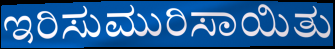
ಇರಿಸುಮುರಿಸಾಯಿತು